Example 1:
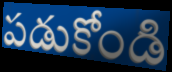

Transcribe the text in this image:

పడుకోండి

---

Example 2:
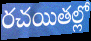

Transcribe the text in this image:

రచయితల్లో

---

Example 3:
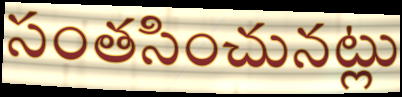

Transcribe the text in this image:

సంతసించునట్లు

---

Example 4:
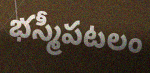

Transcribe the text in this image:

భస్మీపటలం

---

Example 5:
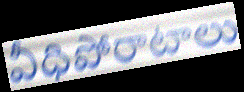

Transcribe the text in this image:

వీధిపోరాటాలు